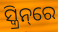
ସ୍କ୍ରିନ୍‌ରେ